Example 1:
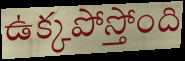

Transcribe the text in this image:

ఉక్కపోస్తోంది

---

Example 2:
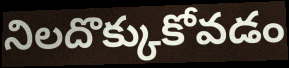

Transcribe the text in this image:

నిలదొక్కుకోవడం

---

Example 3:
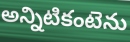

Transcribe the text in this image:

అన్నిటికంటెను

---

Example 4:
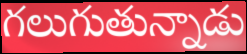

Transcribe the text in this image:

గలుగుతున్నాడు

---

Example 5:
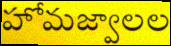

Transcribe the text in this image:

హోమజ్వాలల